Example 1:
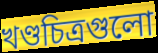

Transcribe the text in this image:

খণ্ডচিত্রগুলো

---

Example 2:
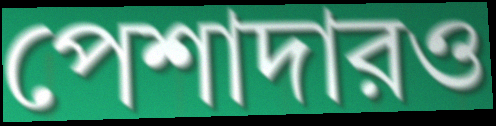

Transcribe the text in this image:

পেশাদারও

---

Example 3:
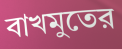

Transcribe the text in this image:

বাখমুতের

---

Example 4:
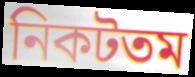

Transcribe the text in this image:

নিকটতম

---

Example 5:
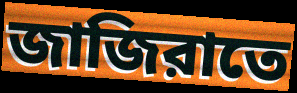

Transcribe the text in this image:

জাজিরাতে